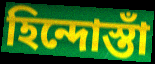
হিন্দোস্তাঁ